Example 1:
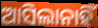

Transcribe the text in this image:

ଆସିଲାନାହିଁ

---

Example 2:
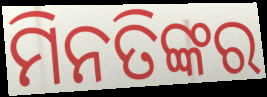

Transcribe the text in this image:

ମିନତିଙ୍କର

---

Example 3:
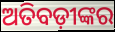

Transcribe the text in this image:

ଅତିବଡ଼ୀଙ୍କର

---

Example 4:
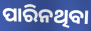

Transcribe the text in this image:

ପାରିନଥିବା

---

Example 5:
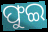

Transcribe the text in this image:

ଫୁଇ